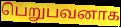
பெறுபவனாக